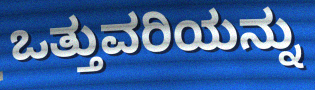
ಒತ್ತುವರಿಯನ್ನು